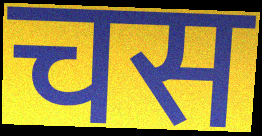
चस